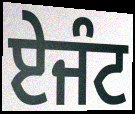
ਏਜੰਟ